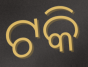
ଟକି